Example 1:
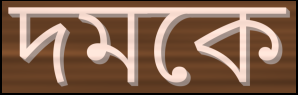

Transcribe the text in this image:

দমকে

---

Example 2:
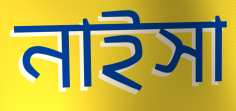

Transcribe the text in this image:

নাইসা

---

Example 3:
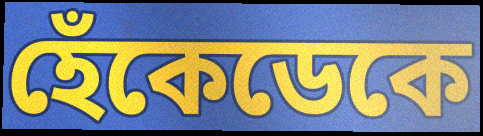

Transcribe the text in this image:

হেঁকেডেকে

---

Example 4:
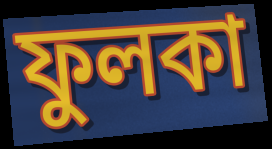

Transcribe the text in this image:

ফুলকা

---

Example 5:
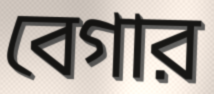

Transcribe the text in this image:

বেগার